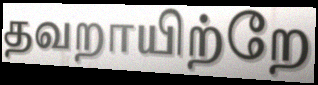
தவறாயிற்றே